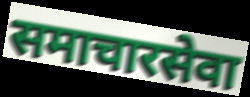
समाचारसेवा